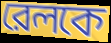
রেলকে